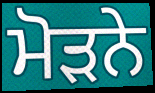
ਮੋੜਨੇ